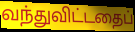
வந்துவிட்டதைப்